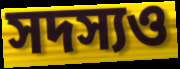
সদস্যও